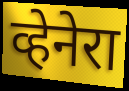
व्हेनेरा